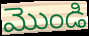
మొండి